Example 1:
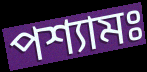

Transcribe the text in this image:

পশ্যামঃ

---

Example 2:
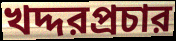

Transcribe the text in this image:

খদ্দরপ্রচার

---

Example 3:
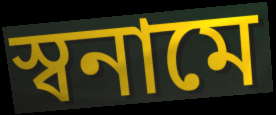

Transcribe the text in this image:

স্বনামে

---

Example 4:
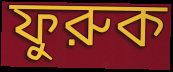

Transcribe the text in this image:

ফুরুক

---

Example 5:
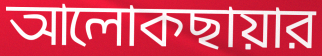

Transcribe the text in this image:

আলোকছায়ার